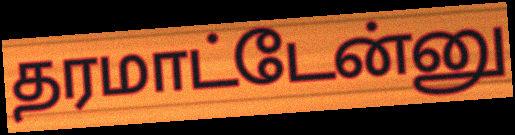
தரமாட்டேன்னு